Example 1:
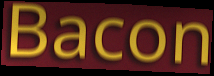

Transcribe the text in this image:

Bacon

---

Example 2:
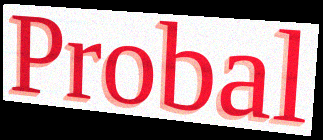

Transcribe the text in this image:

Probal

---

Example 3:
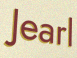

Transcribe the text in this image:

Jearl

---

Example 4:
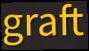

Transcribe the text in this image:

graft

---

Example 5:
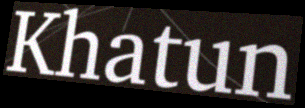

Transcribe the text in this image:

Khatun